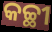
କଚ୍ଛୀ